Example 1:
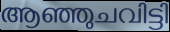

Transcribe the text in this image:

ആഞ്ഞുചവിട്ടി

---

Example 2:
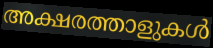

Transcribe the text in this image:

അക്ഷരത്താളുകൾ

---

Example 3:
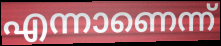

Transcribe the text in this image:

എന്നാണെന്ന്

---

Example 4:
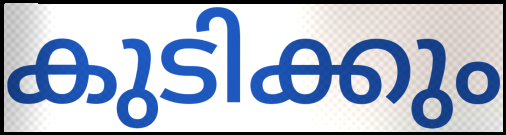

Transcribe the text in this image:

കുടിക്കും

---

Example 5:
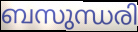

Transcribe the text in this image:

ബസുന്ധരി